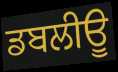
ਡਬਲੀਊ